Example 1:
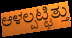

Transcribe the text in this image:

ಆಳಲ್ಪಟ್ಟಿತ್ತು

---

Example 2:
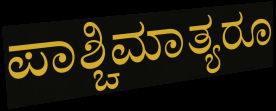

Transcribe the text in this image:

ಪಾಶ್ಚಿಮಾತ್ಯರೂ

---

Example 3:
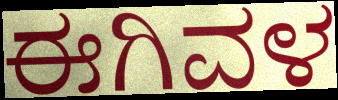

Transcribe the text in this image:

ಈಗಿವಳ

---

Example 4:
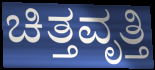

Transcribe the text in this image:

ಚಿತ್ತವೃತ್ತಿ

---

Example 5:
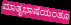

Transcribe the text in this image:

ಮಾತೃಭಾಷೆಯಂತೂ